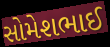
સોમેશભાઈ